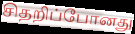
சிதறிப்போனது